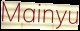
Mainyu